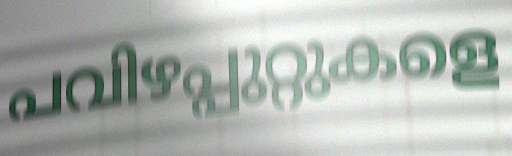
പവിഴപ്പുറ്റുകളെ